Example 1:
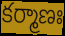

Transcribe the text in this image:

కర్మాణః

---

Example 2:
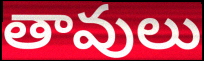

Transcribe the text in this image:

తావులు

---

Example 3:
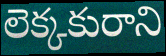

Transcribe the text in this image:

లెక్కకురాని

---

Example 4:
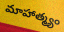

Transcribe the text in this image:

మాహాత్మ్యం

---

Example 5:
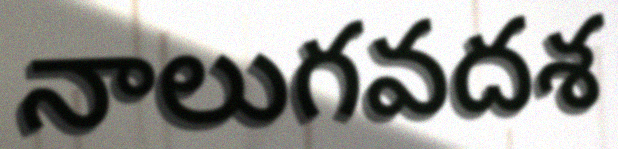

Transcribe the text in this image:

నాలుగవదశ